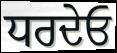
ਧਰਦੇਓ